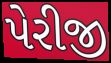
પેરીજી